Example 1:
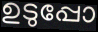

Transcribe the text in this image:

ഉടുപ്പോ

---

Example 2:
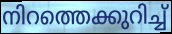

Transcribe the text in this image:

നിറത്തെക്കുറിച്ച്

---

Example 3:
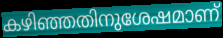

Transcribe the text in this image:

കഴിഞ്ഞതിനുശേഷമാണ്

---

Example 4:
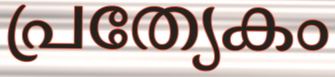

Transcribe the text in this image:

പ്രത്യേകം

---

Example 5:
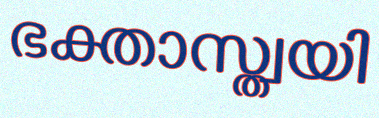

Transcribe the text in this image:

ഭക്താസ്ത്വയി